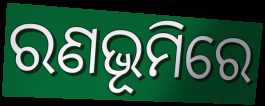
ରଣଭୂମିରେ